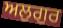
ਅਲੁਗੁਰ